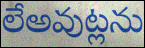
లేఅవుట్లను